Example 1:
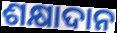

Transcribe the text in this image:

ଶକ୍ଷାଦାନ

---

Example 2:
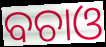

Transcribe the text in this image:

ବଚାଓ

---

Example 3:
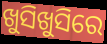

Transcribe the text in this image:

ଖୁସିଖୁସିରେ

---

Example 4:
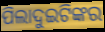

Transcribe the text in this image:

ପିଲାଦୁଇଟିଙ୍କର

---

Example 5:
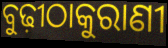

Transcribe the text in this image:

ବୁଢ଼ୀଠାକୁରାଣୀ